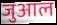
जुआल